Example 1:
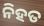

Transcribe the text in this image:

ନିହତ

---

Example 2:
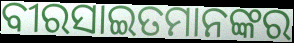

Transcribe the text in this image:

ବୀରସାଇତମାନଙ୍କର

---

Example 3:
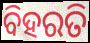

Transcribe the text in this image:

ବିହରତି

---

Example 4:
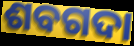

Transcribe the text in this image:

ଶବଗଦା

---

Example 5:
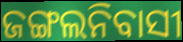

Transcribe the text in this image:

ଜଙ୍ଗଲନିବାସୀ